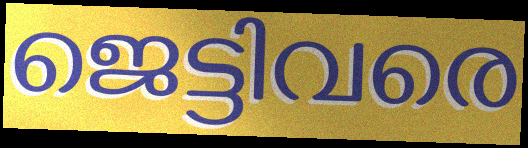
ജെട്ടിവരെ